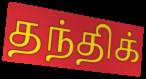
தந்திக்